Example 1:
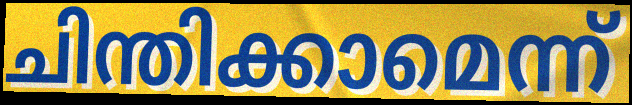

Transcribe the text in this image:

ചിന്തിക്കാമെന്ന്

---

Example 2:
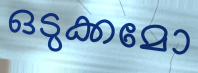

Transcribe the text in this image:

ഒടുക്കമോ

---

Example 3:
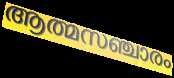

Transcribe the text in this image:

ആത്മസഞ്ചാരം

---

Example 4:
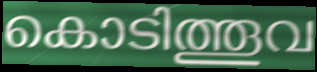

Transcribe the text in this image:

കൊടിത്തൂവ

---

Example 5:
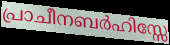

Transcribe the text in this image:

പ്രാചീനബർഹിസ്സേ